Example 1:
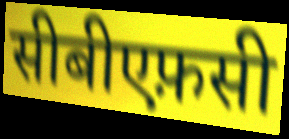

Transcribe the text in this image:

सीबीएफ़सी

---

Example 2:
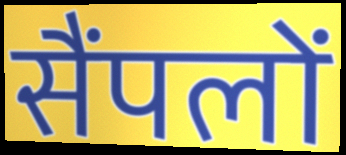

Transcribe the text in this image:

सैंपलों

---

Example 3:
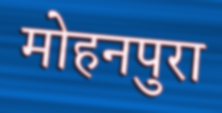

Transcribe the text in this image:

मोहनपुरा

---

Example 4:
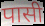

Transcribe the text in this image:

पासी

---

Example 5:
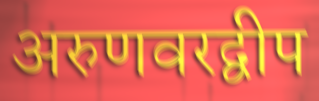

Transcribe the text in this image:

अरुणवरद्वीप